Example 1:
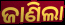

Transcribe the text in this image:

ଜାଣିଲା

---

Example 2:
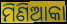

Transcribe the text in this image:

ମିଣିଆକା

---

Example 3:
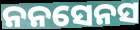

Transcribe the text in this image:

ନନସେନସ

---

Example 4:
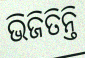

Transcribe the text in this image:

ଭିଜିତିନ୍ତି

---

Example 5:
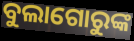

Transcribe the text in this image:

ବୁଲାଗୋରୁଙ୍କ